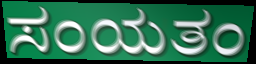
ಸಂಯತಂ